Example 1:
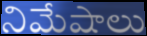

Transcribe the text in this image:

నిమేషాలు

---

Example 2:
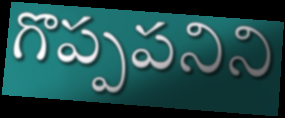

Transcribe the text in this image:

గొప్పపనిని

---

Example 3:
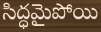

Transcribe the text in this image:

సిద్ధమైపోయి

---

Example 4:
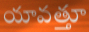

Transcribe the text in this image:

యావత్తూ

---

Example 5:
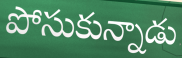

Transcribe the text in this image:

పోసుకున్నాడు